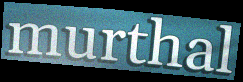
murthal